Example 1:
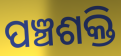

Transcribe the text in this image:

ପଞ୍ଚଶକ୍ତି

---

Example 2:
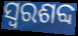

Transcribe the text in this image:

ସ୍ୱରଶବ୍ଦ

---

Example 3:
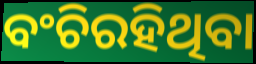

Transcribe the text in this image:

ବଂଚିରହିଥିବା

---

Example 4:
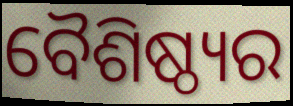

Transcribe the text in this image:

ବୈଶିଷ୍ଠ୍ୟର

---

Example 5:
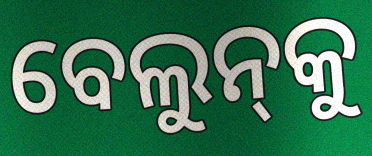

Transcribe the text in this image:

ବେଲୁନ୍‌କୁ